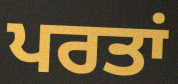
ਪਰਤਾਂ